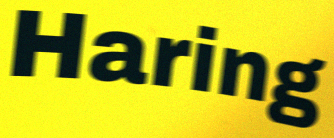
Haring